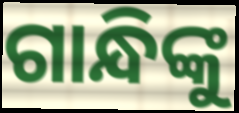
ଗାନ୍ଧିଙ୍କୁ